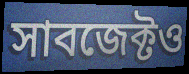
সাবজেক্টও